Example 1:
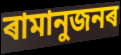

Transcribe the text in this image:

ৰামানুজনৰ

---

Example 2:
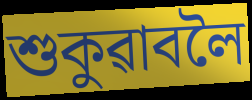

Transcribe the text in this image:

শুকুৱাবলৈ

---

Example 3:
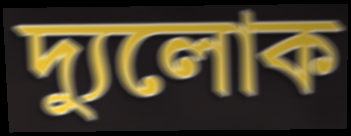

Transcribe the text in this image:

দ্যুলোক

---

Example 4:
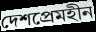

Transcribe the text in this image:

দেশপ্ৰেমহীন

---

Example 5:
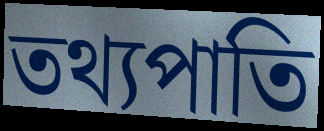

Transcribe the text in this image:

তথ্যপাতি